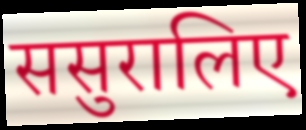
ससुरालिए